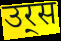
उर्स